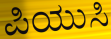
ಪಿಯುಸಿ